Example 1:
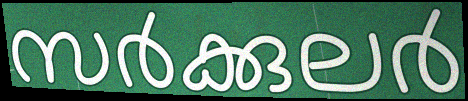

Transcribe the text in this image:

സർക്കുലർ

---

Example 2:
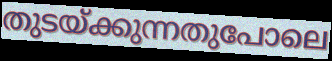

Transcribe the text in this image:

തുടയ്ക്കുന്നതുപോലെ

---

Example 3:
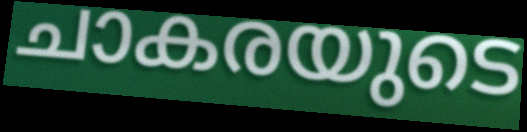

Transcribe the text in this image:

ചാകരയുടെ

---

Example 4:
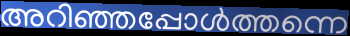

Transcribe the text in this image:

അറിഞ്ഞപ്പോൾത്തന്നെ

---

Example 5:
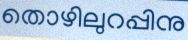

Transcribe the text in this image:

തൊഴിലുറപ്പിനു